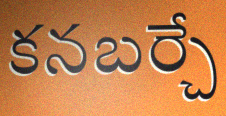
కనబర్చే